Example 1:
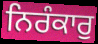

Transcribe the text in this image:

ਨਿਰੰਕਾਰੁ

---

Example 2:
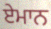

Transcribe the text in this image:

ਏਮਾਨ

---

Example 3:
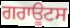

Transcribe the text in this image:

ਗਰਾਊਟਸ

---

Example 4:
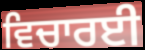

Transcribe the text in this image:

ਵਿਚਾਰਈ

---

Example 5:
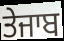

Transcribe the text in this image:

ਤੇਜਾਬ